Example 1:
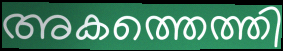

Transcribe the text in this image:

അകത്തെത്തി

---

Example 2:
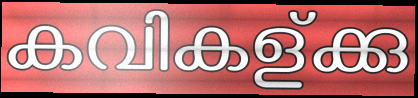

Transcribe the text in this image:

കവികള്ക്കു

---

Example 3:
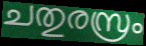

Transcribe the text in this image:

ചതുരസ്രം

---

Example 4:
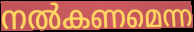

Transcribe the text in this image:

നൽകണമെന്ന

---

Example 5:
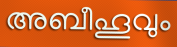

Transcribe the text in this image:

അബീഹൂവും